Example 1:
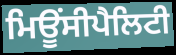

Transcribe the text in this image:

ਮਿਊਂਸੀਪੈਲਿਟੀ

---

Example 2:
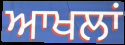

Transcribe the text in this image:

ਆਖਲਾਂ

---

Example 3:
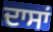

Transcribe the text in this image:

ਦਾਸਾਂ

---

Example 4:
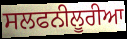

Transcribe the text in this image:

ਸਲਫਨੀਲੂਰੀਆ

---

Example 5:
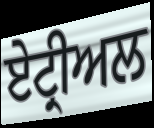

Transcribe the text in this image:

ਏਟ੍ਰੀਅਲ